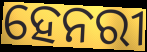
ହେନରୀ